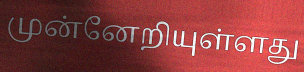
முன்னேறியுள்ளது